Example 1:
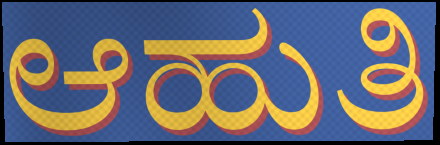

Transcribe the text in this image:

ಆಹುತಿ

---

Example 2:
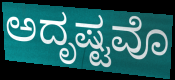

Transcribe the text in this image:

ಅದೃಷ್ಟವೊ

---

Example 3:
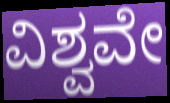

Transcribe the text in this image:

ವಿಶ್ವವೇ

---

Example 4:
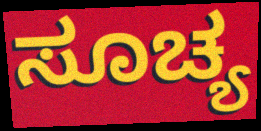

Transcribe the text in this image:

ಸೂಚ್ಯ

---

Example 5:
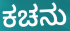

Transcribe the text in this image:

ಕಚನು